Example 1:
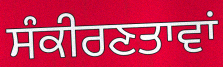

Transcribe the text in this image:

ਸੰਕੀਰਣਤਾਵਾਂ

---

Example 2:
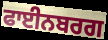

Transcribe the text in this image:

ਫਾਈਨਬਰਗ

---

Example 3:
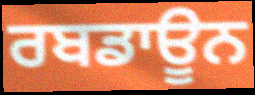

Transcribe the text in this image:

ਰਬਡਾਊਨ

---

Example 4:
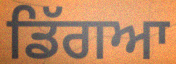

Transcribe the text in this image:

ਡਿੱਗਆ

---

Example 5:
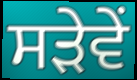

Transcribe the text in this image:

ਸੜੇਵੇਂ